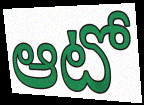
ఆటో